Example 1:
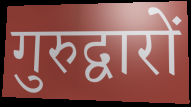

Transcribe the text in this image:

गुरुद्वारों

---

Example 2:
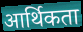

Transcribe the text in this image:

आर्थिकता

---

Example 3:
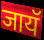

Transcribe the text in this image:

जायॅ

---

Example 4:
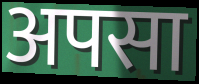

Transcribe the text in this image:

अपसा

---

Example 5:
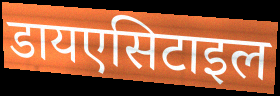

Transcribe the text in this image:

डायएसिटाइल